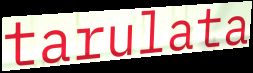
tarulata